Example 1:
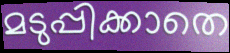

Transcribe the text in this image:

മടുപ്പിക്കാതെ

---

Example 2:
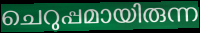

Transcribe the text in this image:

ചെറുപ്പമായിരുന്ന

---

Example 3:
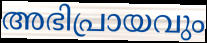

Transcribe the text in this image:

അഭിപ്രായവും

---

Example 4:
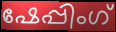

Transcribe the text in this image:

ഷേപ്പിംഗ്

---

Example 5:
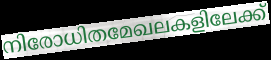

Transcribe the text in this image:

നിരോധിതമേഖലകളിലേക്ക്